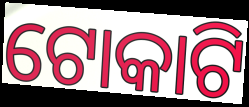
ଟୋକାଟି